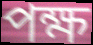
পক্ষ